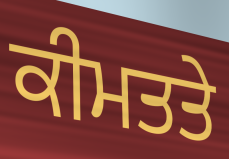
ਕੀਮਤਤੇ